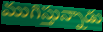
ముగిస్తున్నాడు